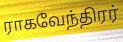
ராகவேந்திரர்